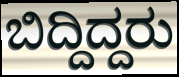
ಬಿದ್ದಿದ್ದರು